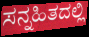
ಸನ್ನಹಿತದಲ್ಲಿ